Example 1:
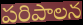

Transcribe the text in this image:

పరిపాలన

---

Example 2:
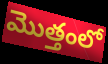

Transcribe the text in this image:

మొత్తంలో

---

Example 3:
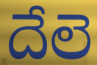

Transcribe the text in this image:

దేలె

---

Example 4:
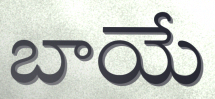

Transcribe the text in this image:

బాయే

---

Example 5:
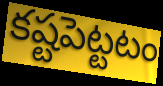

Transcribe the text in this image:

కష్టపెట్టటం